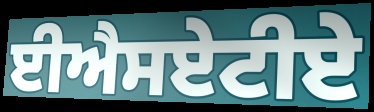
ਈਐਸਏਟੀਏ